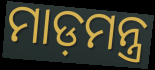
ମାଡ଼ମନ୍ତ୍ର